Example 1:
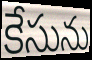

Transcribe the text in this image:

కేసును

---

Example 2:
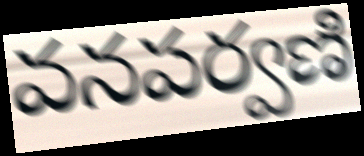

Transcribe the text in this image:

వనపర్వణి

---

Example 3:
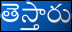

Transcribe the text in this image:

తెస్తారు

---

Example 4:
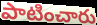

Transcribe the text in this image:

పాటించారు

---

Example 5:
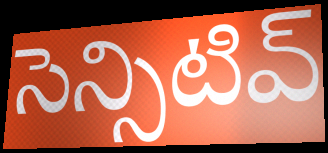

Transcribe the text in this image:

సెన్సిటివ్